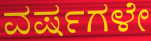
ವರ್ಷಗಳೇ